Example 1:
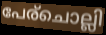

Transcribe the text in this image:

പേര്ചൊല്ലി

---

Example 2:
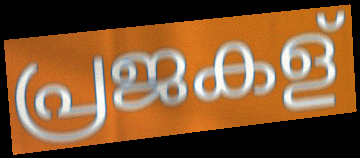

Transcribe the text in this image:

പ്രജകള്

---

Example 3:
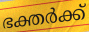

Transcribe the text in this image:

ഭക്തർക്ക്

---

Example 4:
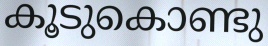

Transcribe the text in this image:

കൂടുകൊണ്ടു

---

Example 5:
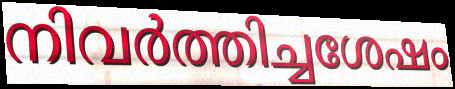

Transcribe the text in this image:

നിവർത്തിച്ചശേഷം